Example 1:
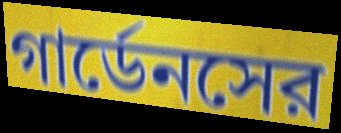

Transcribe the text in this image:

গার্ডেনসের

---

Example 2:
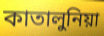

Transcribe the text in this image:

কাতালুনিয়া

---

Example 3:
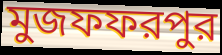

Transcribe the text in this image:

মুজফফরপুর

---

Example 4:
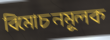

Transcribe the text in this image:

বিমোচনমূলক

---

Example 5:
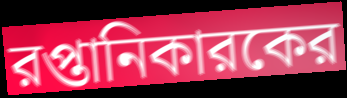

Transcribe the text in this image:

রপ্তানিকারকের